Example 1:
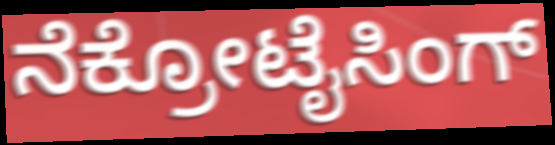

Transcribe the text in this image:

ನೆಕ್ರೋಟೈಸಿಂಗ್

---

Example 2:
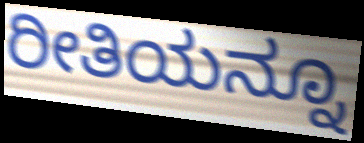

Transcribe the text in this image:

ರೀತಿಯನ್ನೂ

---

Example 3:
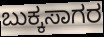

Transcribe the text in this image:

ಬುಕ್ಕಸಾಗರ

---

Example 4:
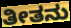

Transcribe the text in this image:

ತೀತನು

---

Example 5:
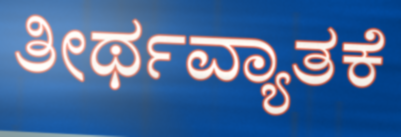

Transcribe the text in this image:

ತೀರ್ಥವ್ಯಾತಕೆ